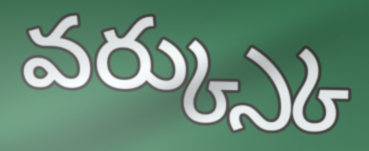
వర్క్స్కు